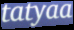
tatyaa